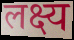
लक्ष्‍य